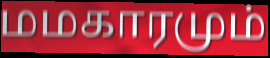
மமகாரமும்